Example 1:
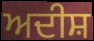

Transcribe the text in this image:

ਅਦੀਸ਼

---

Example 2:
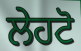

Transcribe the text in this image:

ਲੇਹਟੋ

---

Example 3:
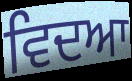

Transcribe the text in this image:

ਵਿਦਆ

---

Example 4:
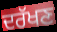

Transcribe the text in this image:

ਦਰੱਖਣ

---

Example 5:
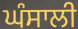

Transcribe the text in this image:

ਘੰਸਾਲੀ